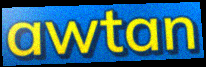
awtan